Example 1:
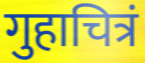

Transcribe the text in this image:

गुहाचित्रं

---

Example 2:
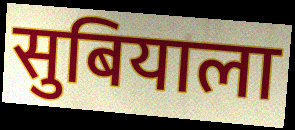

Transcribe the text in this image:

सुबियाला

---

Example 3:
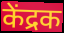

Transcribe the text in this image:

केंद्रक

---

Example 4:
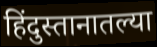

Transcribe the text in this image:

हिंदुस्तानातल्या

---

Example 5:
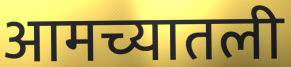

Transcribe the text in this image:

आमच्यातली